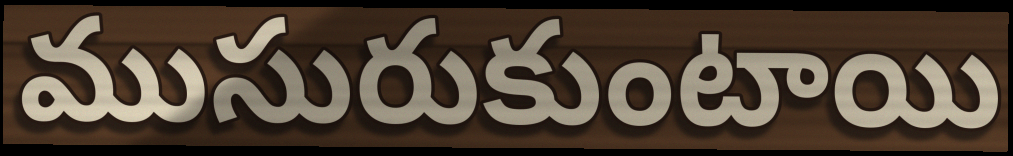
ముసురుకుంటాయి